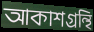
আকাশগ্রন্থি